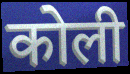
कोली